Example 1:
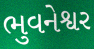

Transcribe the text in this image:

ભુવનેશ્વર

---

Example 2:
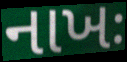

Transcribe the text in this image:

નાખઃ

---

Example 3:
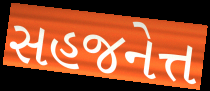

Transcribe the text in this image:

સહજનેત્ત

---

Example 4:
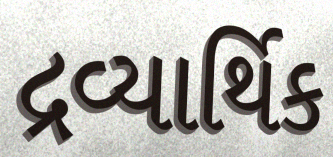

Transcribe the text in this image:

દ્રવ્યાર્થિક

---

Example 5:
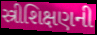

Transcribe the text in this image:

સ્ત્રીશિક્ષણની